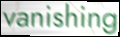
vanishing